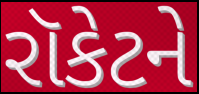
રૉકેટને